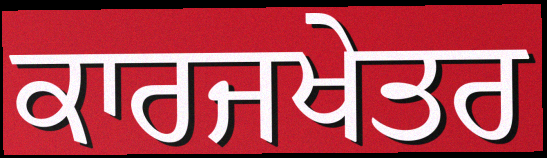
ਕਾਰਜਖੇਤਰ